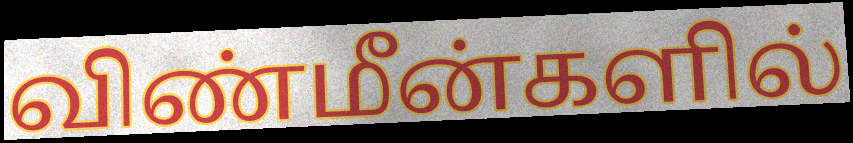
விண்மீன்களில்